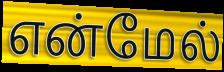
என்மேல்